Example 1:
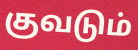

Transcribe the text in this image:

குவடும்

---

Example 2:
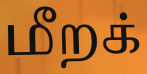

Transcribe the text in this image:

மீறக்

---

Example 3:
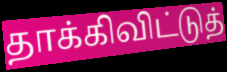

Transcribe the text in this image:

தாக்கிவிட்டுத்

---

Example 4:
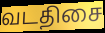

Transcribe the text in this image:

வடதிசை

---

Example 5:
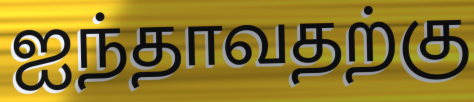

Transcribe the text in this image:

ஐந்தாவதற்கு